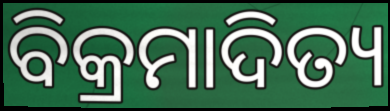
ବିକ୍ରମାଦିତ୍ୟ